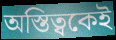
অস্তিত্বকেই